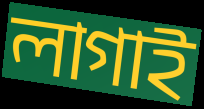
লাগাই